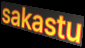
sakastu